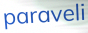
paraveli